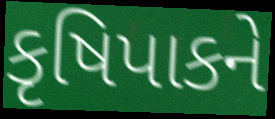
કૃષિપાકને